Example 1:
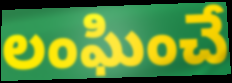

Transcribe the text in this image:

లంఘించే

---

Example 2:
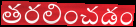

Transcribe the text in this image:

తరలించడం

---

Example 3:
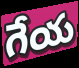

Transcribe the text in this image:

గేయ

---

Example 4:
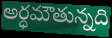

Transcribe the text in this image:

అర్ధమౌతున్నది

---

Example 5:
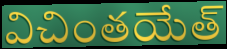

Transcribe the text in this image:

విచింతయేత్